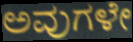
ಅವುಗಳೇ